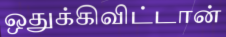
ஒதுக்கிவிட்டான்